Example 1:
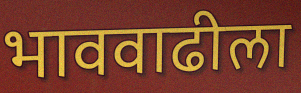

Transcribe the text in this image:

भाववाढीला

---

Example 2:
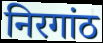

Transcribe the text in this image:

निरगांठ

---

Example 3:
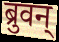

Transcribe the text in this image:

ब्रुवन्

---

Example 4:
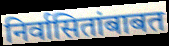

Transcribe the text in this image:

निर्वासितांबाबत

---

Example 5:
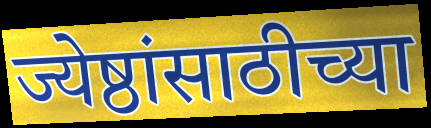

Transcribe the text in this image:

ज्येष्ठांसाठीच्या